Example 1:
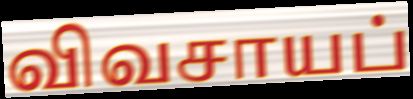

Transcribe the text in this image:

விவசாயப்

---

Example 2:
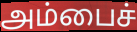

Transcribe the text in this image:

அம்பைச்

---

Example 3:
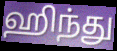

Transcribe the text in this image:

ஹிந்து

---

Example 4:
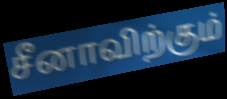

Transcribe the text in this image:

சீனாவிற்கும்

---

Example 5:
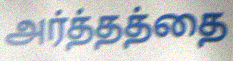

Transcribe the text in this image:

அர்த்தத்தை